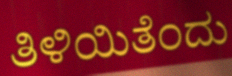
ತಿಳಿಯಿತೆಂದು